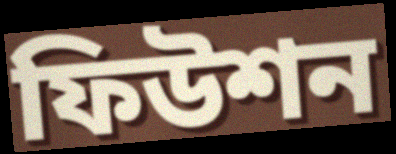
ফিউশন